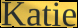
Katie